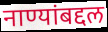
नाण्यांबद्दल